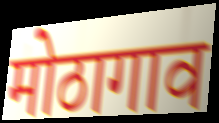
मोठागाव